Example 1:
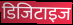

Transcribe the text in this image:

डिजिटाइज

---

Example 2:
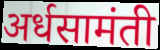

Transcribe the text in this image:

अर्धसामंती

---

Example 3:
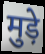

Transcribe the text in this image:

मुड़े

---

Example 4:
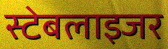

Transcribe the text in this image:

स्टेबलाइजर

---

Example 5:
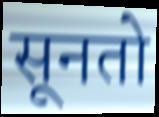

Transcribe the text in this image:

सूनतो